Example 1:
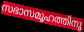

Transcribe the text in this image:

സഭാസമൂഹത്തിനു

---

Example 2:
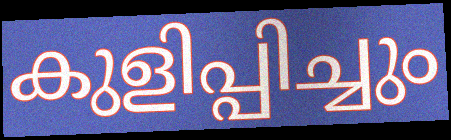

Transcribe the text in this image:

കുളിപ്പിച്ചും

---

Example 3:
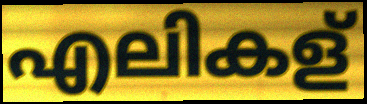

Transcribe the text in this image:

എലികള്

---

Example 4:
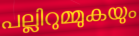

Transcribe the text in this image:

പല്ലിറുമ്മുകയും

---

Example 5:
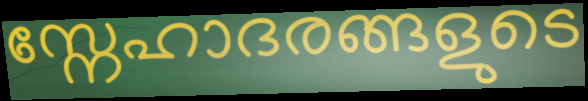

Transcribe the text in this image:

സ്നേഹാദരങ്ങളുടെ